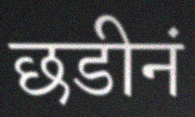
छडीनं